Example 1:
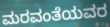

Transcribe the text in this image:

ಮರವಂತೆಯವರ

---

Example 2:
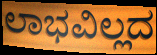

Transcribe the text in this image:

ಲಾಭವಿಲ್ಲದ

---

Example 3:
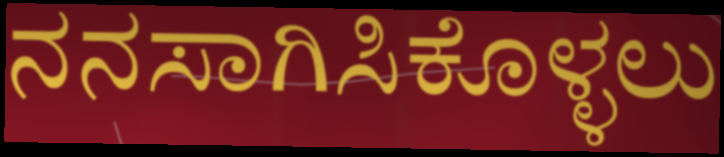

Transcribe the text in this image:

ನನಸಾಗಿಸಿಕೊಳ್ಳಲು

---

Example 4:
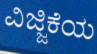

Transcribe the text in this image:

ವಿಜ್ಜಿಕೆಯ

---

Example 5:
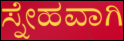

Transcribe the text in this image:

ಸ್ನೇಹವಾಗಿ